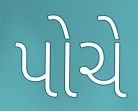
પોચે